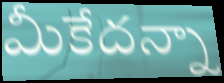
మీకేదన్నా